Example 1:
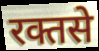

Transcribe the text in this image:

रक्तसे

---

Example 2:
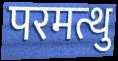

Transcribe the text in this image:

परमत्थु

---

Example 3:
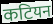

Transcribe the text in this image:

कटियन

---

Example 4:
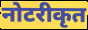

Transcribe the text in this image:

नोटरीकृत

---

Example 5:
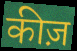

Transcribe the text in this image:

कीज़